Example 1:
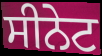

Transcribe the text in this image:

ਸੀਨੇਟ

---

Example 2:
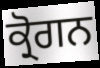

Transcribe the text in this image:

ਕ੍ਰੋਗਨ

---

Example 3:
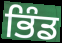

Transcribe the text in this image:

ਭਿੰਡ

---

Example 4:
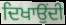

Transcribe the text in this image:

ਦਿਖਾਉਂਦੀ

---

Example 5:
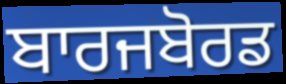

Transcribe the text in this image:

ਬਾਰਜਬੋਰਡ